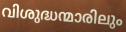
വിശുദ്ധന്മാരിലും